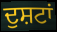
ਦੁਸ਼ਟਾਂ